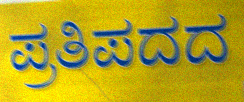
ಪ್ರತಿಪದದ